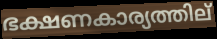
ഭക്ഷണകാര്യത്തില്